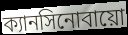
ক্যানসিনোবায়ো